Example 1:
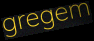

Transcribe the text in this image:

gregem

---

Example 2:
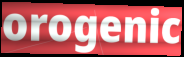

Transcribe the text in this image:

orogenic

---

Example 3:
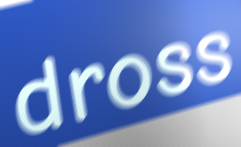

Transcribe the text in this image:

dross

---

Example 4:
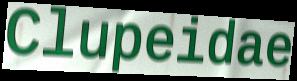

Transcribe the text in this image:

Clupeidae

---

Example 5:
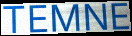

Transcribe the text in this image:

TEMNE